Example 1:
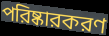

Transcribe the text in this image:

পরিষ্কারকরণ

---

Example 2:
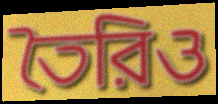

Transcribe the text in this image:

তৈরিও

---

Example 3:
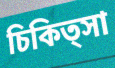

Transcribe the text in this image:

চিকিত্সা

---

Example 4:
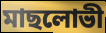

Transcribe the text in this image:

মাছলোভী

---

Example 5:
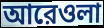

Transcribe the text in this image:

আরেওলা